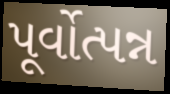
પૂર્વોત્પન્ન